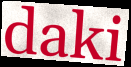
daki